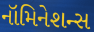
નૉમિનેશન્સ